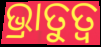
ଭ୍ରାତୁତ୍ଵ